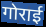
गोराई